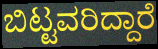
ಬಿಟ್ಟವರಿದ್ದಾರೆ